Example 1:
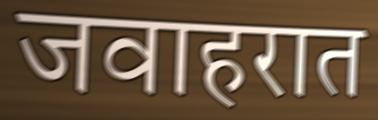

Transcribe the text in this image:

जवाहरात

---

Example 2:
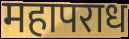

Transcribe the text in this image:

महापराध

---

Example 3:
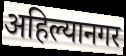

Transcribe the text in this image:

अहिल्यानगर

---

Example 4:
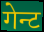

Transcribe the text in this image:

गेन्ट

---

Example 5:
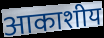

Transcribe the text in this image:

आकाशीय